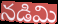
నడిమి